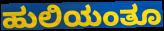
ಹುಲಿಯಂತೂ